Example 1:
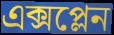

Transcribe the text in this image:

এক্সপ্লেন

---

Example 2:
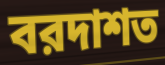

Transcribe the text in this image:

বরদাশত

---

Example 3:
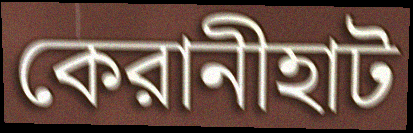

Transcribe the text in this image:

কেরানীহাট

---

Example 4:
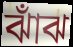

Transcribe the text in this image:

ঝাঁঝ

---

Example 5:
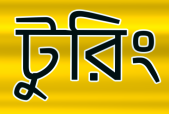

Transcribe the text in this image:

টুরিং